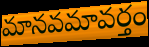
మానవమావర్తం